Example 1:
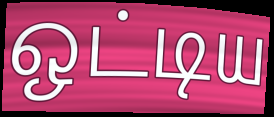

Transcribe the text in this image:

ஒட்டிய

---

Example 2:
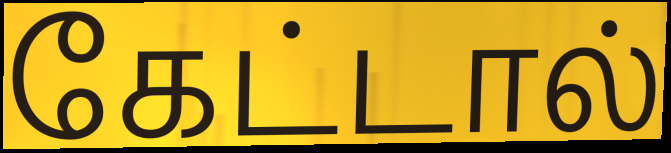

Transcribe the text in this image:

கேட்டால்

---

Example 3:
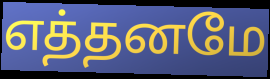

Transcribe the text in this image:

எத்தனமே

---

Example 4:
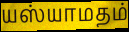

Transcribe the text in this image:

யஸ்யாமதம்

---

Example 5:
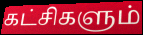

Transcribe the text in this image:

கட்சிகளும்